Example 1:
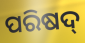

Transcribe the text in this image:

ପରିଷଦ୍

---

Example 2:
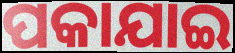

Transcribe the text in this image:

ପକାଯାଇ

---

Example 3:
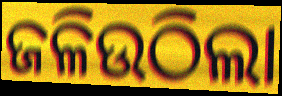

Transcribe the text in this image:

ଜଳିଉଠିଲା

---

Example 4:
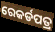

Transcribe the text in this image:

ରେକର୍ଡପତ୍ର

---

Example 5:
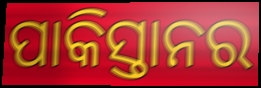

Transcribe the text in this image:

ପାକିସ୍ତାନର